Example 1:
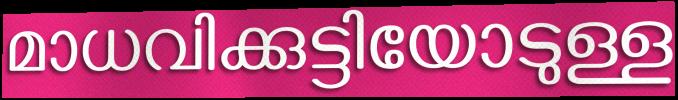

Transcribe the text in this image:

മാധവിക്കുട്ടിയോടുള്ള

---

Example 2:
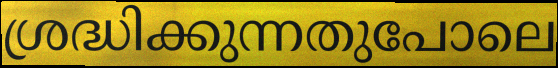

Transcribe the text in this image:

ശ്രദ്ധിക്കുന്നതുപോലെ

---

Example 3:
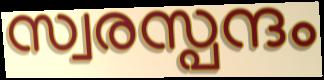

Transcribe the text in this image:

സ്വരസ്പന്ദം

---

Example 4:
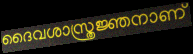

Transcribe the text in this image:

ദൈവശാസ്ത്രജ്ഞനാണ്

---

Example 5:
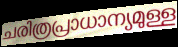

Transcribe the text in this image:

ചരിത്രപ്രാധാന്യമുള്ള